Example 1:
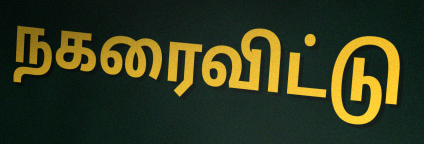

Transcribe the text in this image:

நகரைவிட்டு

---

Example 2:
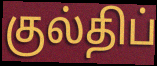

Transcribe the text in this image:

குல்திப்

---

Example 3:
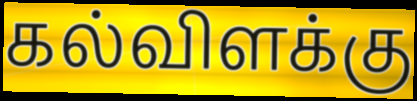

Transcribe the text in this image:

கல்விளக்கு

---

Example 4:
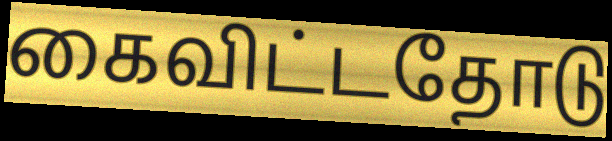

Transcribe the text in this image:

கைவிட்டதோடு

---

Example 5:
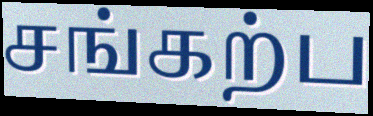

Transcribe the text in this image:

சங்கற்ப